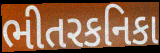
ભીતરકનિકા